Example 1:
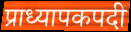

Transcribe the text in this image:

प्राध्यापकपदी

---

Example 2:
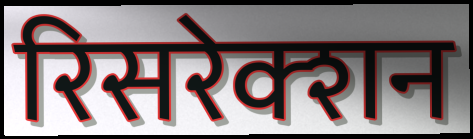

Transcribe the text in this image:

रिसरेक्शन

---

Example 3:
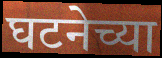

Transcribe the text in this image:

घटनेच्या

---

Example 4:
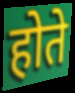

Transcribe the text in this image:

होते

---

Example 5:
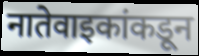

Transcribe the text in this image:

नातेवाइकांकडून